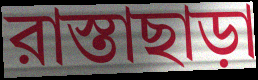
রাস্তাছাড়া